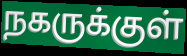
நகருக்குள்